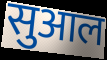
सुआल